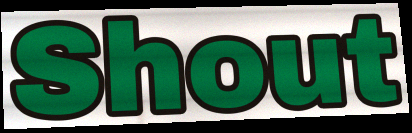
Shout